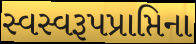
સ્વસ્વરૂપપ્રાપ્તિના